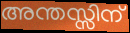
അന്തസ്സിന്